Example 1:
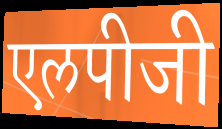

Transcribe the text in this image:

एलपीजी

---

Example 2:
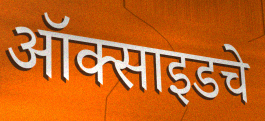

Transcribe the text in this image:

ऑक्साइडचे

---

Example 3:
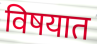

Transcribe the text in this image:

विषयात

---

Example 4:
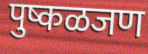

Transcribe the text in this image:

पुष्कळजण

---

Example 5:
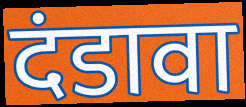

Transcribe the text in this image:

दंडावा